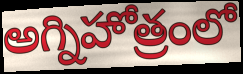
అగ్నిహోత్రంలో